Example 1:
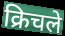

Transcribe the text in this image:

क्रिचले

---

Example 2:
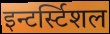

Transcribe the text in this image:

इन्टर्स्टिशल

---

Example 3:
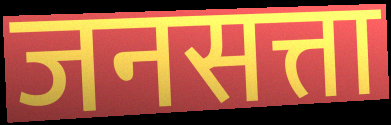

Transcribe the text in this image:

जनसत्ता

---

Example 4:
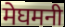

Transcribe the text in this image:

मेघमनी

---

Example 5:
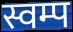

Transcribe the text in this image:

स्वम्प